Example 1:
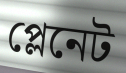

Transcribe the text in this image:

প্লেনেট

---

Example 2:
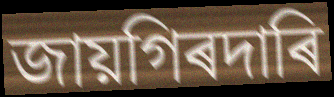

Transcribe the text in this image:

জায়গিৰদাৰি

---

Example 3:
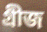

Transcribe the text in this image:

গ্ৰীজ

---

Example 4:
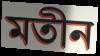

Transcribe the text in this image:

মতীন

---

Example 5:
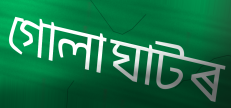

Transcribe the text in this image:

গোলাঘাটৰ